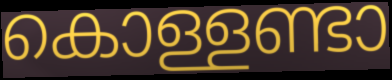
കൊള്ളണ്ടാ